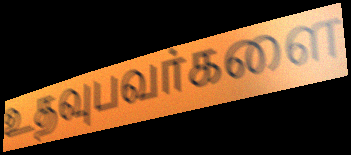
உதவுபவர்களை